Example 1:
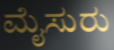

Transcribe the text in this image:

ಮೈಸುರು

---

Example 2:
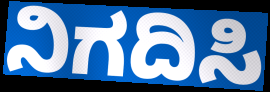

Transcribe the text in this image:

ನಿಗದಿಸಿ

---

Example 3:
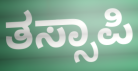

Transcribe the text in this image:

ತಸ್ಸಾಪಿ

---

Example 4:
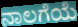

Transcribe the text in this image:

ನಾಲಗೆಯೆ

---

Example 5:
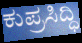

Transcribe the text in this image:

ಕುಪ್ರಸಿದ್ಧಿ